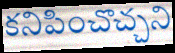
కనిపించొచ్చని